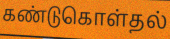
கண்டுகொள்தல்